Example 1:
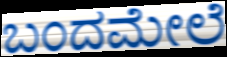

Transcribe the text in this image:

ಬಂದಮೇಲೆ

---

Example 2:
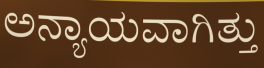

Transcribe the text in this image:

ಅನ್ಯಾಯವಾಗಿತ್ತು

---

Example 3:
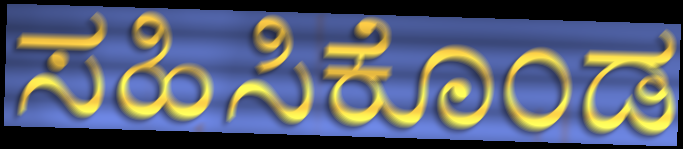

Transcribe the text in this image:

ಸಹಿಸಿಕೊಂಡ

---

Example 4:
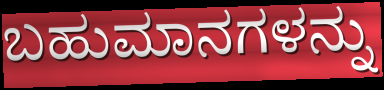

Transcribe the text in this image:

ಬಹುಮಾನಗಳನ್ನು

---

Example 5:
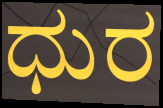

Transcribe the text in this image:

ಧುರ